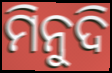
ମିନୁଦି